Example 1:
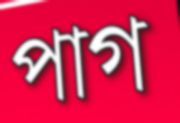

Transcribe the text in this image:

পাগ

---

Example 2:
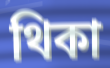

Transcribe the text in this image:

থিকা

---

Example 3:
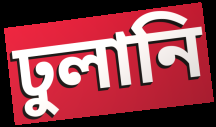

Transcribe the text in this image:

ঢুলানি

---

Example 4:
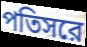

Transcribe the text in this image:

পতিসরে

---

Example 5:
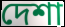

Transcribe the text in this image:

দেশা